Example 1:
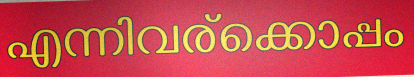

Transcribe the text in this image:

എന്നിവര്ക്കൊപ്പം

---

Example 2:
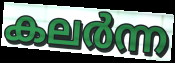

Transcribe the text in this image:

കലർന്ന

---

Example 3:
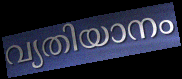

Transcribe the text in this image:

വ്യതിയാനം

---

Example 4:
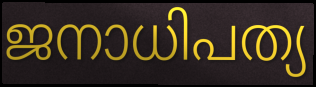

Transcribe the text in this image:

ജനാധിപത്യ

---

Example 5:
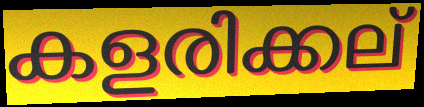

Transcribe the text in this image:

കളരിക്കല്